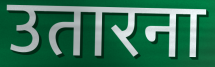
उतारना